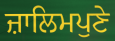
ਜ਼ਾਲਿਮਪੁਣੇ